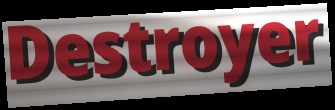
Destroyer